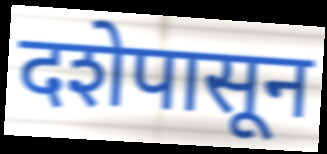
दशेपासून